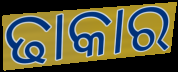
ଢାକାର